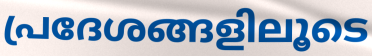
പ്രദേശങ്ങളിലൂടെ